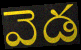
వెడ